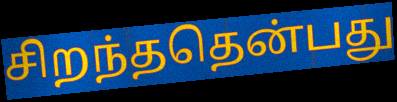
சிறந்ததென்பது